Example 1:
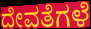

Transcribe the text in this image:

ದೇವತೆಗಳೆ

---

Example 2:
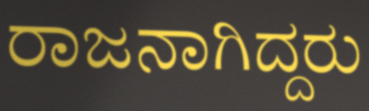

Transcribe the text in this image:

ರಾಜನಾಗಿದ್ದರು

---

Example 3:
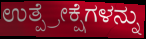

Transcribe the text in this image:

ಉತ್ಪ್ರೇಕ್ಷೆಗಳನ್ನು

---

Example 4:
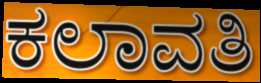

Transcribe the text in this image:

ಕಲಾವತಿ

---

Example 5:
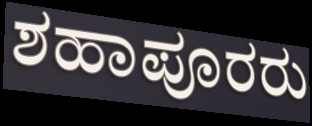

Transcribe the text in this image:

ಶಹಾಪೂರರು